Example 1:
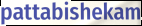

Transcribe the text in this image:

pattabishekam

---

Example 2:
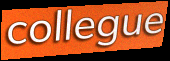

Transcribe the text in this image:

collegue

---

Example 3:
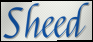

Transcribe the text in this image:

Sheed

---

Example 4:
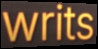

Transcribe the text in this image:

writs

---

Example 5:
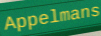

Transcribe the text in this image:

Appelmans